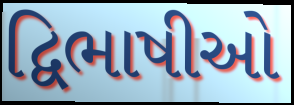
દ્વિભાષીઓ